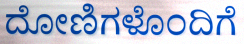
ದೋಣಿಗಳೊಂದಿಗೆ